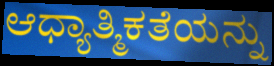
ಆಧ್ಯಾತ್ಮಿಕತೆಯನ್ನು